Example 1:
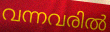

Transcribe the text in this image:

വന്നവരിൽ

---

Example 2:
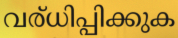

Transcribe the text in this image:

വര്ധിപ്പിക്കുക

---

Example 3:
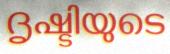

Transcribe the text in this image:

ദൃഷ്ടിയുടെ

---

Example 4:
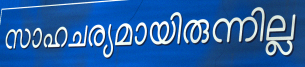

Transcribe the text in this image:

സാഹചര്യമായിരുന്നില്ല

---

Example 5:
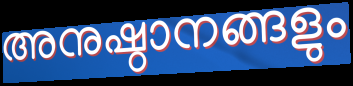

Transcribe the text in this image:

അനുഷ്ഠാനങ്ങളും